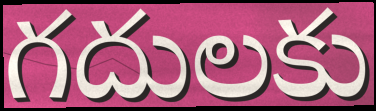
గదులకు